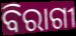
ବିରାଗୀ